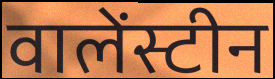
वालेंस्टीन